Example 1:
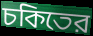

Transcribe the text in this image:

চকিতের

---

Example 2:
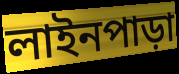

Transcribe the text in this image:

লাইনপাড়া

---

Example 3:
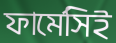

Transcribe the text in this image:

ফার্মেসিই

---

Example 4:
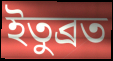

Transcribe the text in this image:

ইতুব্রত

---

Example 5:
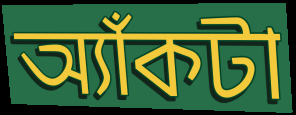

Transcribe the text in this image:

অ্যাঁকটা